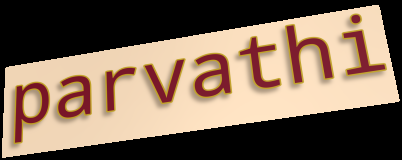
parvathi